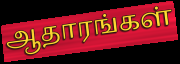
ஆதாரங்கள்